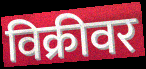
विक्रीवर